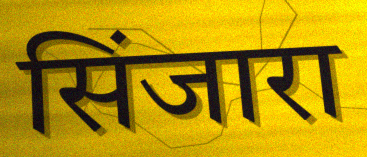
सिंजारा